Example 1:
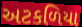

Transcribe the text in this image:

અટકળિયા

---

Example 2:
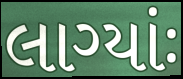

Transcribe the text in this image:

લાગ્યાંઃ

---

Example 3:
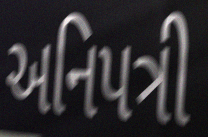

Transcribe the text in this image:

અનિપત્રી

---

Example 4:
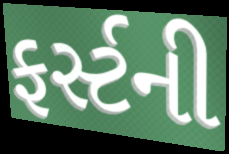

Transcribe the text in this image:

ફર્સ્ટની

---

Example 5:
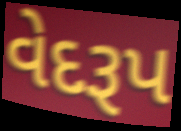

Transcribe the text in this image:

વેદરૂપ